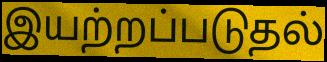
இயற்றப்படுதல்